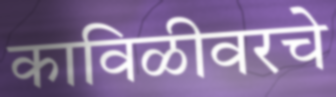
काविळीवरचे